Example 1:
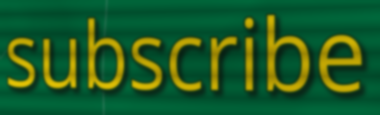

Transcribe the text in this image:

subscribe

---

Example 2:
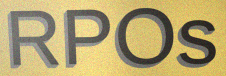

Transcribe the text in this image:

RPOs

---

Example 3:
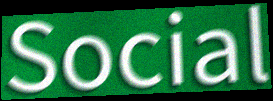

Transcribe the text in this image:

Social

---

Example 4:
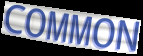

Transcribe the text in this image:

COMMON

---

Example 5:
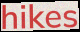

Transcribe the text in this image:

hikes